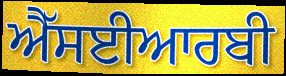
ਐੱਸਈਆਰਬੀ